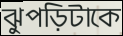
ঝুপড়িটাকে